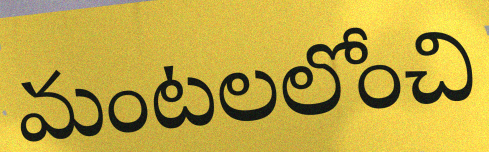
మంటలలోంచి